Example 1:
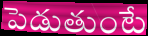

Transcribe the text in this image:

పెడుతుంటే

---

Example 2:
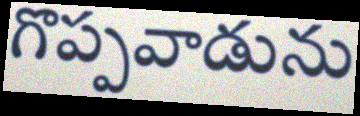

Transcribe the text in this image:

గొప్పవాడును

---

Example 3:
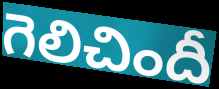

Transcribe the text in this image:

గెలిచిందీ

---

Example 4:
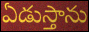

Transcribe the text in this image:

ఏడుస్తాను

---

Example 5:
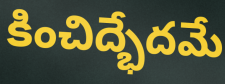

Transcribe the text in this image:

కించిద్భేదమే